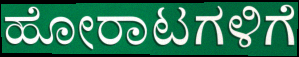
ಹೋರಾಟಗಳಿಗೆ